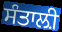
ਸੰਤਾਲ਼ੀ